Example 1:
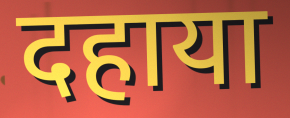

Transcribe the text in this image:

दहाया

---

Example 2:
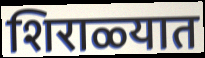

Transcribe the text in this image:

शिराळ्यात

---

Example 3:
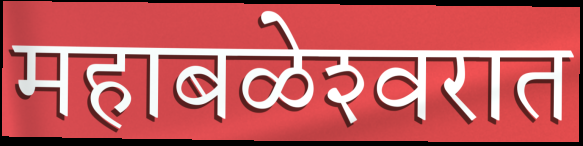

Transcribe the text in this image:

महाबळेश्वरात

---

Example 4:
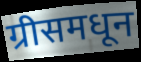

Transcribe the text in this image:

ग्रीसमधून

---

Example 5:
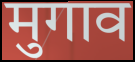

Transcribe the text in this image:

मुगाव